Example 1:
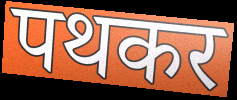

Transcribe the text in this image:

पथकर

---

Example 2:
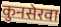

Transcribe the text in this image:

कुनसेरवा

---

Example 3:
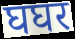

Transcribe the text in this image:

घघर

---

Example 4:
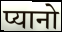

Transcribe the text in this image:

प्यानो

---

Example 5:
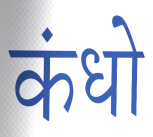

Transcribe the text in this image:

कंधो